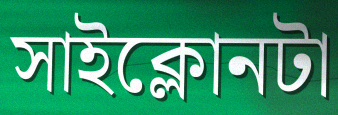
সাইক্লোনটা